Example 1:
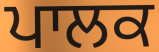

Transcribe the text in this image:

ਪਾਲਕ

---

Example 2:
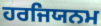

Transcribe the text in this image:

ਹਰਜਿਯਨਮ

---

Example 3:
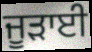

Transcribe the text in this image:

ਜੂੜਾਈ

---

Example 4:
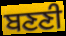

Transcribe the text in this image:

ਬਣਣੀ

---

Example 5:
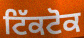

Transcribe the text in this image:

ਟਿੱਕਟੋਕ